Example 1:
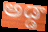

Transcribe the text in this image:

అడ్డా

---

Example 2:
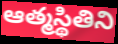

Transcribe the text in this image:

ఆత్మస్థితిని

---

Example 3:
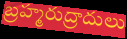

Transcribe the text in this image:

బ్రహ్మరుద్రాదులు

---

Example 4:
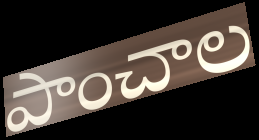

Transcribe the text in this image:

పాంచాల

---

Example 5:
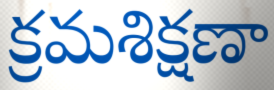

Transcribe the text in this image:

క్రమశిక్షణా